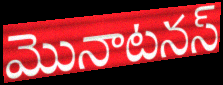
మొనాటనస్